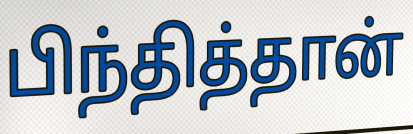
பிந்தித்தான்